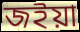
জইয়া